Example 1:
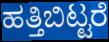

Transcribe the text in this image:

ಹತ್ತಿಬಿಟ್ಟರೆ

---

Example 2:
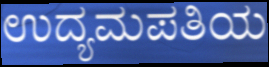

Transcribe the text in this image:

ಉದ್ಯಮಪತಿಯ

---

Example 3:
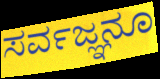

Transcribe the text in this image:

ಸರ್ವಜ್ಞನೂ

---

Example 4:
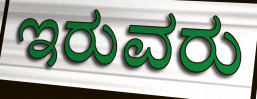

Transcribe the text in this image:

ಇರುವರು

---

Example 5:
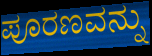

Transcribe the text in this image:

ಪೂರಣವನ್ನು